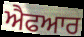
ਐਫਆਰ